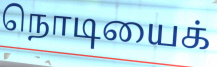
நொடியைக்